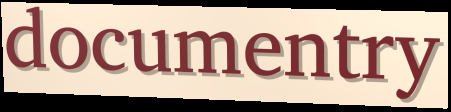
documentry